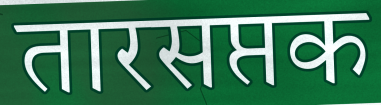
तारसप्तक